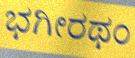
ಭಗೀರಥಂ